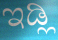
ಇಡ್ಲಿ